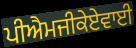
ਪੀਐਮਜੀਕੇਏਵਾਈ